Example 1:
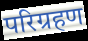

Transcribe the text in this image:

परिग्रहण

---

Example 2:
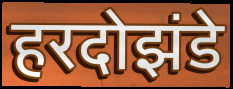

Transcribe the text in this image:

हरदोझंडे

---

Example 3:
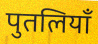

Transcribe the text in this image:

पुतलियाँ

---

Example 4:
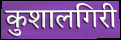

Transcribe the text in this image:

कुशालगिरी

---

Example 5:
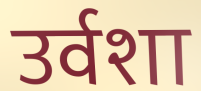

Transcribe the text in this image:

उर्वशा